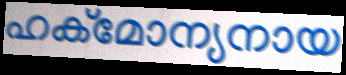
ഹക്മോന്യനായ